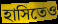
হাসিতেও